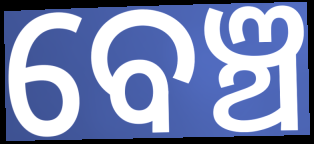
ବେଞ୍ଚ